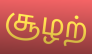
சூழற்